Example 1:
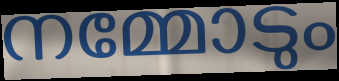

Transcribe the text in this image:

നമ്മോടും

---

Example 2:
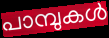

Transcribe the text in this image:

പാമ്പുകൾ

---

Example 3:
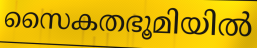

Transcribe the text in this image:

സൈകതഭൂമിയിൽ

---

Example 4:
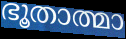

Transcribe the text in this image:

ഭൂതാത്മാ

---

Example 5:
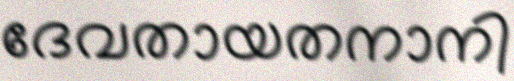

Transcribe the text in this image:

ദേവതായതനാനി